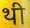
थी